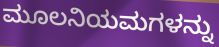
ಮೂಲನಿಯಮಗಳನ್ನು